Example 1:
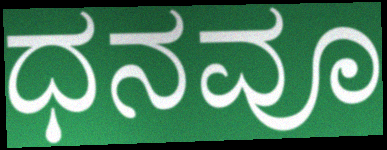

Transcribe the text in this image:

ಧನವೂ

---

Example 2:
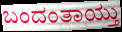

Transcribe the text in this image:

ಬಂದಂತಾಯ್ತು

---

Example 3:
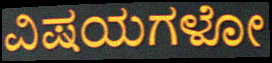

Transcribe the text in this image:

ವಿಷಯಗಳೋ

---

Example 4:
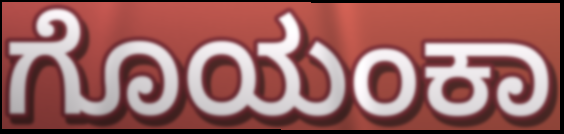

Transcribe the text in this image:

ಗೊಯಂಕಾ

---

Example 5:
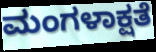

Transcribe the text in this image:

ಮಂಗಳಾಕ್ಷತೆ